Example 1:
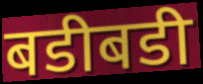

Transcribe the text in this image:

बडीबडी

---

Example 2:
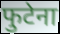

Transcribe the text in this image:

फुटेना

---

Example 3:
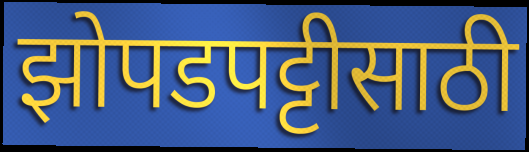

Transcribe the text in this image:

झोपडपट्टीसाठी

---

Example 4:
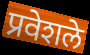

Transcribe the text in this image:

प्रवेशले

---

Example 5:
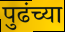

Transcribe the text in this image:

पुढंच्या